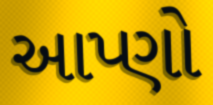
આપ્ણો